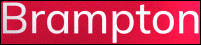
Brampton